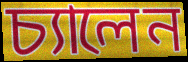
চ্যালেন